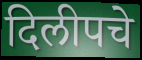
दिलीपचे